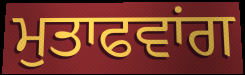
ਮੁਤਾਫਵਾਂਗ